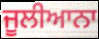
ਜੂਲੀਆਨਾ